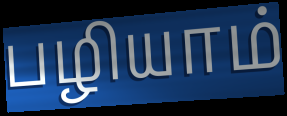
பழியாம்